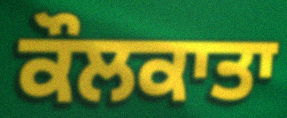
ਕੌਲਕਾਤਾ